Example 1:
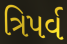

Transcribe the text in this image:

ત્રિપર્વ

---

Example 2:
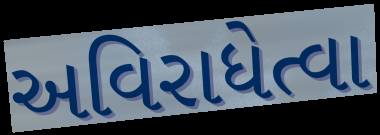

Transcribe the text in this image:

અવિરાધેત્વા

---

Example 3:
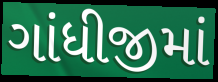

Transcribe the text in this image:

ગાંધીજીમાં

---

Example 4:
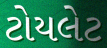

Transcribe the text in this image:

ટોયલેટ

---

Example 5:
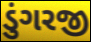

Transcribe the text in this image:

ડુંગરજી